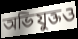
অভিযুক্তও